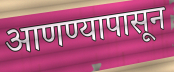
आणण्यापासून